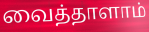
வைத்தாளாம்